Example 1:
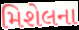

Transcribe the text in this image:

મિશેલના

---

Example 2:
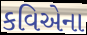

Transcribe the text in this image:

કવિએના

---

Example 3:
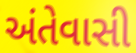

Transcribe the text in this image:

અંતેવાસી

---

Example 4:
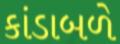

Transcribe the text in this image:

કાંડાબળે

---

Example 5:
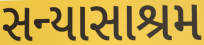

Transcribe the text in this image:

સન્યાસાશ્રમ